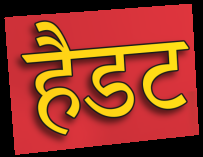
हैडट